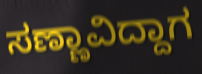
ಸಣ್ಣಾವಿದ್ದಾಗ